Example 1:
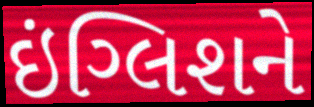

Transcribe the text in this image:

ઇંગ્લિશને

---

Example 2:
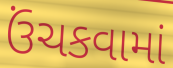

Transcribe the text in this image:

ઉંચકવામાં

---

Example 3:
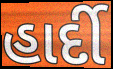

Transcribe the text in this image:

હાર્દી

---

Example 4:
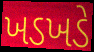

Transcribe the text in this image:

ખડખડે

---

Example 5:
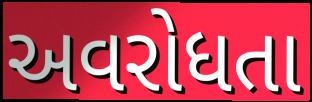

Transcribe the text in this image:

અવરોધતા